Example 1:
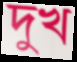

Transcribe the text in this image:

দুখ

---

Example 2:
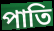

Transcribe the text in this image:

পাতি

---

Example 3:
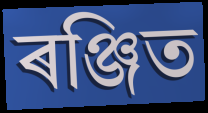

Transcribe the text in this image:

ৰঞ্জিত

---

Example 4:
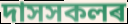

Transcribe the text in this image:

দাসসকলৰ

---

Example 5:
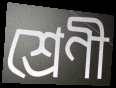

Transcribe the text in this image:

শ্ৰেণী